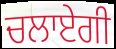
ਚਲਾਏਗੀ